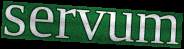
servum